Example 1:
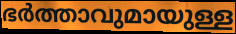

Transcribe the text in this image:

ഭർത്താവുമായുള്ള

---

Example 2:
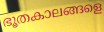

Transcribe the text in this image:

ഭൂതകാലങ്ങളെ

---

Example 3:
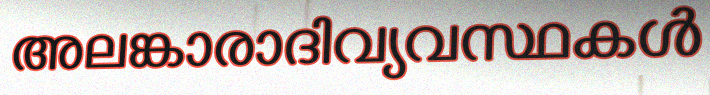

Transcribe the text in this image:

അലങ്കാരാദിവ്യവസ്ഥകൾ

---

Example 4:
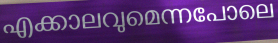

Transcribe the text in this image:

എക്കാലവുമെന്നപോലെ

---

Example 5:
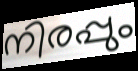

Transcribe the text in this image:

നിരപ്പും